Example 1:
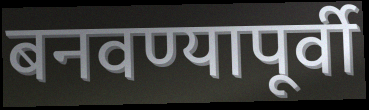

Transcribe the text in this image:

बनवण्यापूर्वी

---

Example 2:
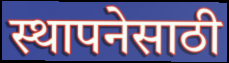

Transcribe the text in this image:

स्थापनेसाठी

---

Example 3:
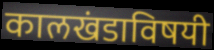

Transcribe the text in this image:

कालखंडाविषयी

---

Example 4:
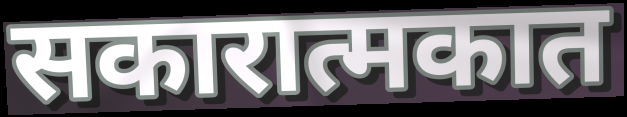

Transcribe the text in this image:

सकारात्मकात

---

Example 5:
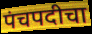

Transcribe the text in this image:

पंचपदीचा